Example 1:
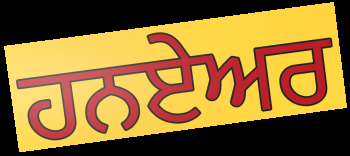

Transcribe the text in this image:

ਹਨਏਅਰ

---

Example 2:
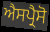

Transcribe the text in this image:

ਐਸਪ੍ਰੈਸੋ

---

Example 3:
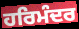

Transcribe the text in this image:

ਹਰਿਮੰਦਰ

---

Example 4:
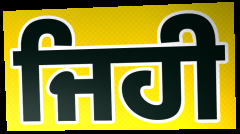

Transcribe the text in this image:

ਜਿਹੀ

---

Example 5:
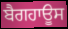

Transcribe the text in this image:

ਬੈਗਹਾਊਸ